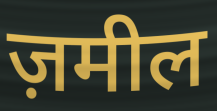
ज़मील